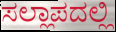
ಸಲ್ಲಾಪದಲ್ಲಿ